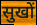
सुखों